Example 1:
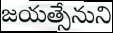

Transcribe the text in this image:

జయత్సేనుని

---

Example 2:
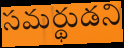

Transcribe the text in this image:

సమర్థుడని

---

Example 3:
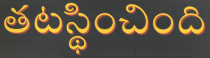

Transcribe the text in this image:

తటస్థించింది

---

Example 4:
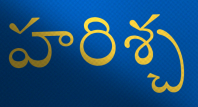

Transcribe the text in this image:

హరిశ్చ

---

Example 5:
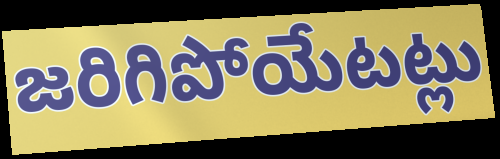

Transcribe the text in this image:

జరిగిపోయేటట్లు